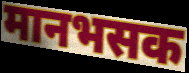
मानभसक